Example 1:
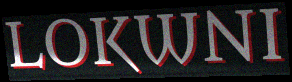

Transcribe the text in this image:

LOKWNI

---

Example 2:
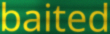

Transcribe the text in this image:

baited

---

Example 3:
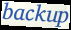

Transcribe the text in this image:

backup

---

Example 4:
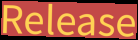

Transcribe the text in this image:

Release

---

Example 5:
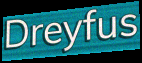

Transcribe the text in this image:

Dreyfus